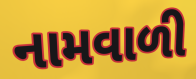
નામવાળી